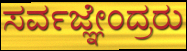
ಸರ್ವಜ್ಞೇಂದ್ರರು